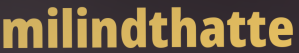
milindthatte